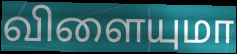
விளையுமா